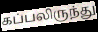
கப்பலிருந்து